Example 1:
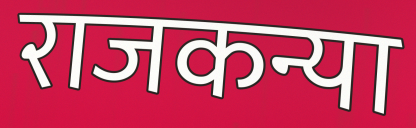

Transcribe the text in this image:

राजकन्या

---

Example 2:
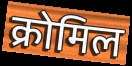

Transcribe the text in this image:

क्रोमिल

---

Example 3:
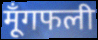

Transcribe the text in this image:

मूँगफली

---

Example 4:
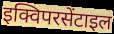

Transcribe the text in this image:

इक्विपरसेंटाइल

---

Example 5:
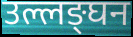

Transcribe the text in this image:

उल्लङ्घन